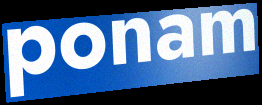
ponam